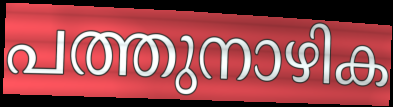
പത്തുനാഴിക